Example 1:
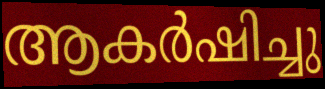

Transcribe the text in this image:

ആകർഷിച്ചു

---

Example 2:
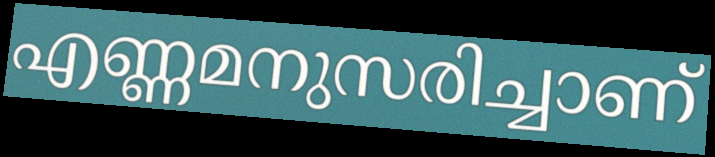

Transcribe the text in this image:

എണ്ണമനുസരിച്ചാണ്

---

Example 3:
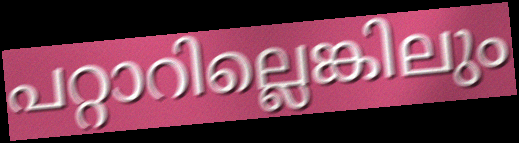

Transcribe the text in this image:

പറ്റാറില്ലെങ്കിലും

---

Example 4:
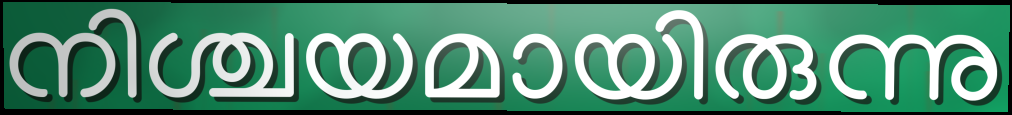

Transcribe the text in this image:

നിശ്ചയമായിരുന്നു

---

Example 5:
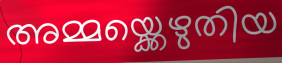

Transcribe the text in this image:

അമ്മയ്ക്കെഴുതിയ